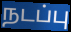
நடப்பு